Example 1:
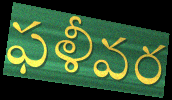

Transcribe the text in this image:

ఫళీవర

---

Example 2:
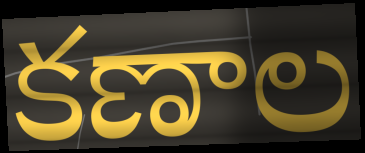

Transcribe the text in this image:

కణాల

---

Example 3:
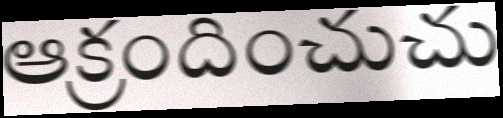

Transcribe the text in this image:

ఆక్రందించుచు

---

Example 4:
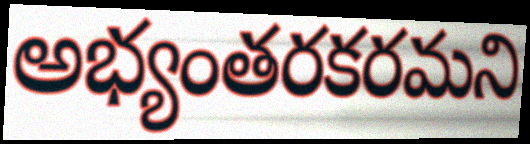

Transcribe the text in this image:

అభ్యంతరకరమని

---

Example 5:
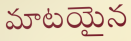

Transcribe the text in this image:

మాటయైన